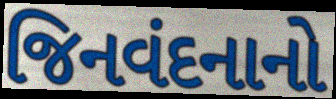
જિનવંદનાનો